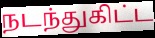
நடந்துகிட்ட